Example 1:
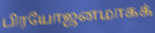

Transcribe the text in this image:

பிரயோஜனமாகக்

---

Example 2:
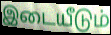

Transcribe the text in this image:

இடையீடும்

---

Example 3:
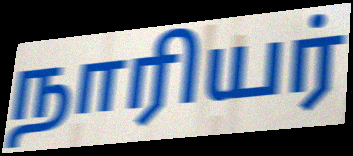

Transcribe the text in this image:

நாரியர்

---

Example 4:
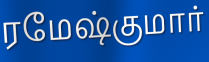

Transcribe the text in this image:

ரமேஷ்குமார்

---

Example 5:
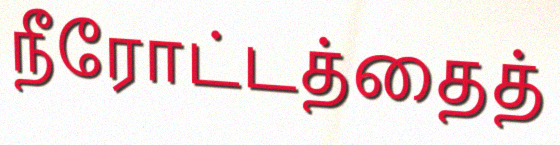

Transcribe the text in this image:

நீரோட்டத்தைத்